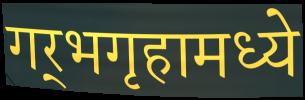
गर्भगृहामध्ये